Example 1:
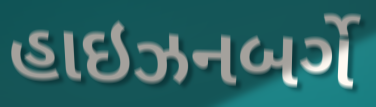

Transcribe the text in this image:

હાઇઝનબર્ગે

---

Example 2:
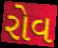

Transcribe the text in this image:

રોવ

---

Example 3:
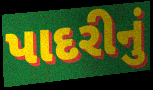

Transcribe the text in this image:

પાદરીનું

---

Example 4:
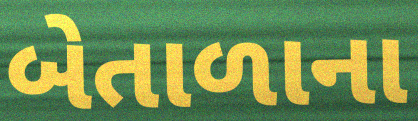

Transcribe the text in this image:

બેતાળાના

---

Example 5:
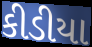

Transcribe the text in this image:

કીડીયા